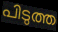
പിടുത്ത